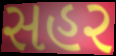
સહર